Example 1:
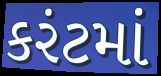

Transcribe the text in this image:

કરંટમાં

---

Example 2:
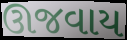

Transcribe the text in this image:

ઊજવાય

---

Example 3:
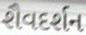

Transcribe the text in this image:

શૈવદર્શન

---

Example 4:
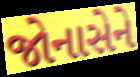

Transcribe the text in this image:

જોનાસેને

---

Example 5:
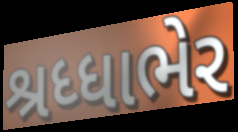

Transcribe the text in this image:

શ્રધ્ધાભેર